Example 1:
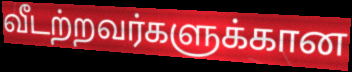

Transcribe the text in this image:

வீடற்றவர்களுக்கான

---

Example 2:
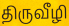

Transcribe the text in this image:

திருவீழி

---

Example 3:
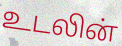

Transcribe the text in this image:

உடலின்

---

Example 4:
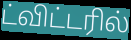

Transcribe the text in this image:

ட்விட்டரில்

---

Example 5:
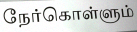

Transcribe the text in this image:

நேர்கொள்ளும்